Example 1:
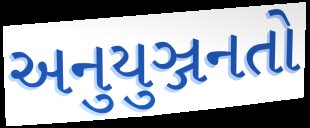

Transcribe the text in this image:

અનુયુઞ્જનતો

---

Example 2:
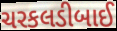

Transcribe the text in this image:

ચરકલડીબાઈ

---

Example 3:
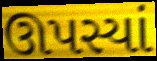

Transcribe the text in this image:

ઊપસ્યાં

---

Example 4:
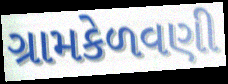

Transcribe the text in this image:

ગ્રામકેળવણી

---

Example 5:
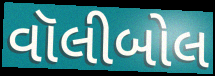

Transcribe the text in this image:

વૉલીબોલ